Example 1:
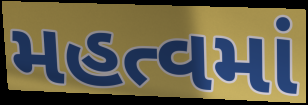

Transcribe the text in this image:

મહત્વમાં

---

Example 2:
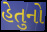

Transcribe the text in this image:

હેતુનો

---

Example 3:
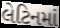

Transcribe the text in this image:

લેટિનમાં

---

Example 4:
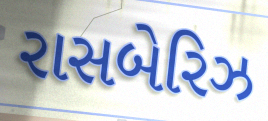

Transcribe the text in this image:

રાસબેરિઝ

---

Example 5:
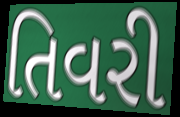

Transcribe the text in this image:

તિવરી